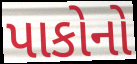
પાકોનો